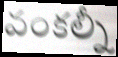
వంకల్నీ